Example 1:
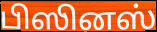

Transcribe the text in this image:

பிஸினஸ்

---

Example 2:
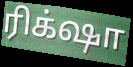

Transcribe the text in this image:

ரிக்‌ஷா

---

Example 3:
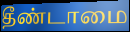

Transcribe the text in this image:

தீண்டாமை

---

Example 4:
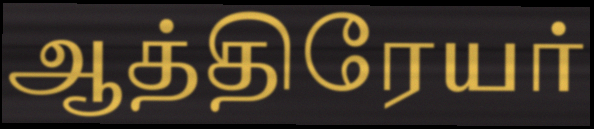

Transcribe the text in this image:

ஆத்திரேயர்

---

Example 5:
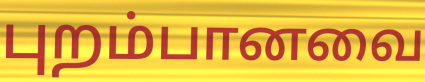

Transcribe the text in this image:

புறம்பானவை